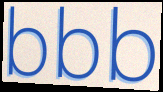
bbb